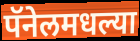
पॅनेलमधल्या